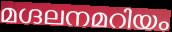
മഗ്ദലനമറിയം